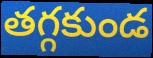
తగ్గకుండ